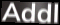
Addl